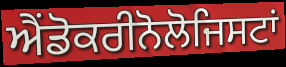
ਐਂਡੋਕਰੀਨੋਲੋਜਿਸਟਾਂ